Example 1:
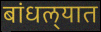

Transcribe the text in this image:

बांधल्यात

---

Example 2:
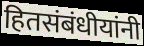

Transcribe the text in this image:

हितसंबंधीयांनी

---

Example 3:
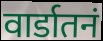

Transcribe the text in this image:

वार्डातनं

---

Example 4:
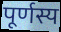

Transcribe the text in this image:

पूर्णस्य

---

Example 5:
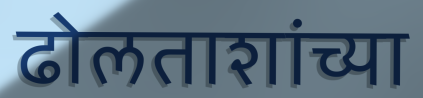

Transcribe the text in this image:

ढोलताशांच्या